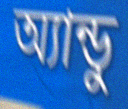
অ্যান্ডু